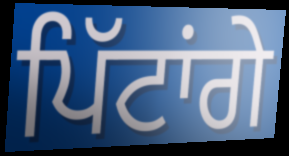
ਪਿੱਟਾਂਗੇ